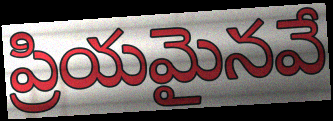
ప్రియమైనవే